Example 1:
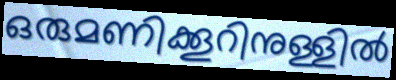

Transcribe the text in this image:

ഒരുമണിക്കൂറിനുള്ളിൽ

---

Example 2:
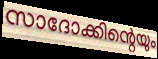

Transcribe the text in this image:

സാദോക്കിന്റെയും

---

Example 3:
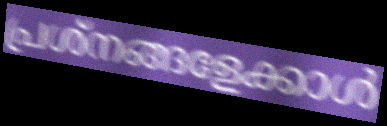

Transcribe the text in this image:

പ്രശ്നങ്ങളേക്കാൾ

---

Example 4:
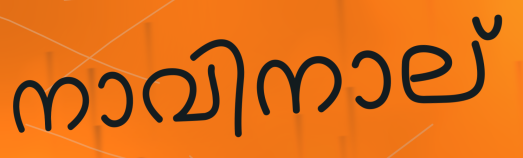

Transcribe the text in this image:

നാവിനാല്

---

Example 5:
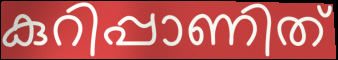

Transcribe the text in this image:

കുറിപ്പാണിത്